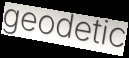
geodetic